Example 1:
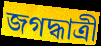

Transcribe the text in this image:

জগদ্ধাত্রী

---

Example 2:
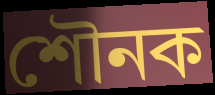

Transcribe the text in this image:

শৌনক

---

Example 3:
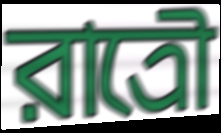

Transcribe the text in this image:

রাত্রৌ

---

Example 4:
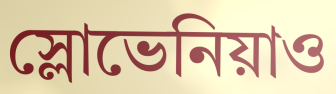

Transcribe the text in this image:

স্লোভেনিয়াও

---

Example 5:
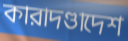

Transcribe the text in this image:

কারাদণ্ডাদেশ